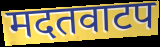
मदतवाटप